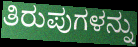
ತಿರುಪುಗಳನ್ನು